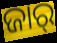
ଜାର୍